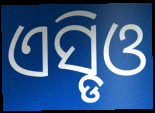
ଏସ୍ଡିଓ